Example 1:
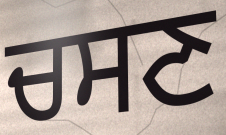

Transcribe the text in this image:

ਚਸਣ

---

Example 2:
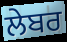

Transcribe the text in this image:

ਲੇਬਰ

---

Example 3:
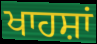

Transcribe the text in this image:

ਖਾਹਸ਼ਾਂ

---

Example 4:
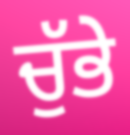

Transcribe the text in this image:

ਚੁੱਭੇ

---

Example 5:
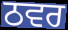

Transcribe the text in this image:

ਠਵਰ